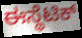
ಈಸ್ಥೆಟಿಕ್